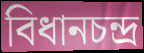
বিধানচন্দ্র